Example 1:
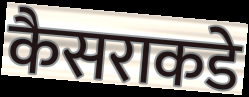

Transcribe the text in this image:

कैसराकडे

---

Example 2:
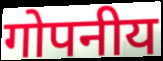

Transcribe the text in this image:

गोपनीय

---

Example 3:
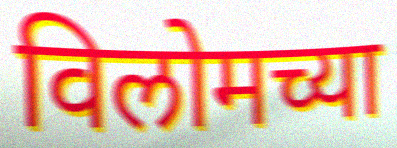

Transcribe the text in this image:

विलोमच्या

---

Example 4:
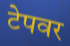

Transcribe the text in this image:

टेपवर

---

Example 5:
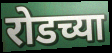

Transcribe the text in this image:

रोडच्या